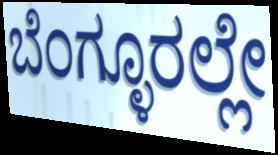
ಬೆಂಗ್ಳೂರಲ್ಲೇ